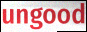
ungood